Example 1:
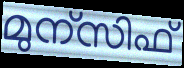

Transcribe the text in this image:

മുന്സിഫ്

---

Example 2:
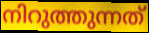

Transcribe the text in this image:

നിറുത്തുന്നത്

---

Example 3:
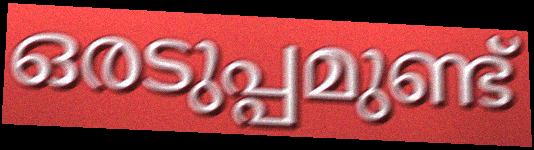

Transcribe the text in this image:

ഒരടുപ്പമുണ്ട്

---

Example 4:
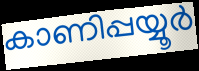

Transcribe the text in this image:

കാണിപ്പയ്യൂർ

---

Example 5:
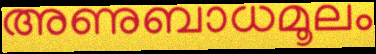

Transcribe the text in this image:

അണുബാധമൂലം